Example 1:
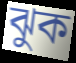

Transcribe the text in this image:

ঝুক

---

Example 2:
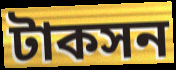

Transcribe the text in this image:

টাকসন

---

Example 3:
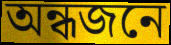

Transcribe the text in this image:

অন্ধজনে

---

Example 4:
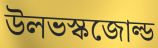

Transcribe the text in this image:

উলভস্কজোল্ড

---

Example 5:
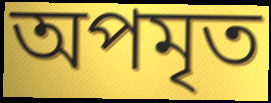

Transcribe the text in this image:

অপমৃত